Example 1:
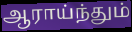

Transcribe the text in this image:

ஆராய்ந்தும்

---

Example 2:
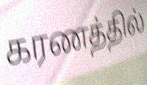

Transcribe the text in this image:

கரணத்தில்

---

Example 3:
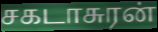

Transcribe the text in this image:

சகடாசுரன்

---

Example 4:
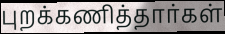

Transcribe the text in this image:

புறக்கணித்தார்கள்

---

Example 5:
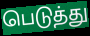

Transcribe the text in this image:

பெடுத்து